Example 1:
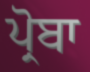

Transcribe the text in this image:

ਪ੍ਰੋਬਾ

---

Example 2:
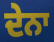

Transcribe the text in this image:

ਦੇਨਾ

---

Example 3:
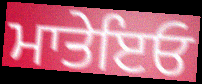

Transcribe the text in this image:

ਮਾਤੇਇਓ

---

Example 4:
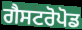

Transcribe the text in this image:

ਗੈਸਟਰੋਪੋਡ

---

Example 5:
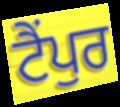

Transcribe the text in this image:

ਟੈਂਪੁਰ